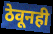
ठेवूनही